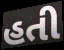
હતી